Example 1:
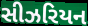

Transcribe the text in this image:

સીઝરિયન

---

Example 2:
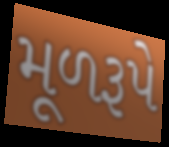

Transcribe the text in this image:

મૂળરૂપે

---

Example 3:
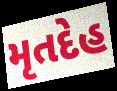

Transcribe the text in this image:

મૃતદેહ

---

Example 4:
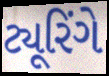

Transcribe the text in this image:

ટ્યૂરિંગે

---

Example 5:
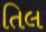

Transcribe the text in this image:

તિલ